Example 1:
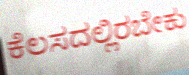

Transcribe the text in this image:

ಕೆಲಸದಲ್ಲಿರಬೇಕು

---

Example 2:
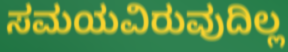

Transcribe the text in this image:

ಸಮಯವಿರುವುದಿಲ್ಲ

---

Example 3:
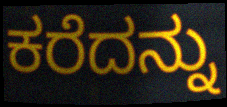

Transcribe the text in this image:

ಕರೆದನ್ನು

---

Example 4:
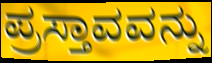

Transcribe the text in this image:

ಪ್ರಸ್ತಾವವನ್ನು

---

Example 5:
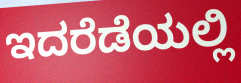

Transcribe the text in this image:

ಇದರೆಡೆಯಲ್ಲಿ